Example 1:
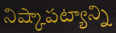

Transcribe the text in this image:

నిష్కాపట్యాన్ని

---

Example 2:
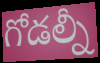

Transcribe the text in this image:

గోడల్నీ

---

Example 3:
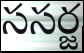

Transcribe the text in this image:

ససర్జ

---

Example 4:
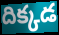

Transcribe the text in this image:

దిక్కడ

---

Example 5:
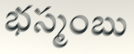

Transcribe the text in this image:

భస్మంబు